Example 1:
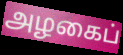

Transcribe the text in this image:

அழகைப்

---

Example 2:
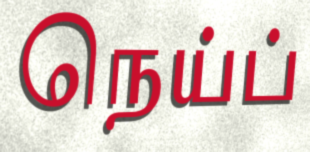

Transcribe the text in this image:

நெய்ப்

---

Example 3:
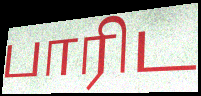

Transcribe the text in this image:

பாரிட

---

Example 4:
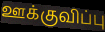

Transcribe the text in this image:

ஊக்குவிப்பு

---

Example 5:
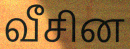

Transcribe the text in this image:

வீசின